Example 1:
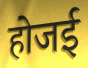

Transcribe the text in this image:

होजई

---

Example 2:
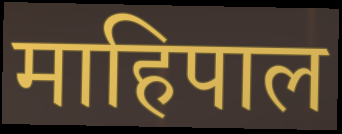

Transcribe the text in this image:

माहिपाल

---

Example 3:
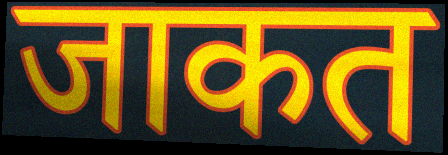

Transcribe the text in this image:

जाकत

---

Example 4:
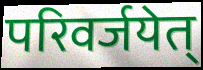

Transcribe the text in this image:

परिवर्जयेत्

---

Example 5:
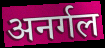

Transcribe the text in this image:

अनर्गल